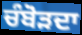
ਚੰਬੋੜਦਾ